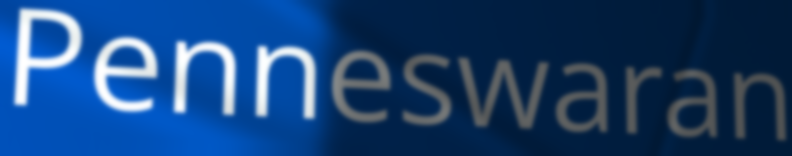
Penneswaran